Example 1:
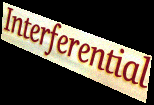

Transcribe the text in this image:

Interferential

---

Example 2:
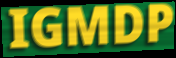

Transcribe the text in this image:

IGMDP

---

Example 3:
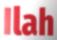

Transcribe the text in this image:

Ilah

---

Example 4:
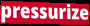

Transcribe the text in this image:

pressurize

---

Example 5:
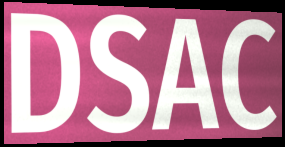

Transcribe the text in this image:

DSAC